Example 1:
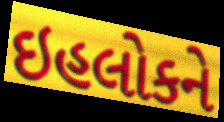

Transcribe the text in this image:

ઇહલોકને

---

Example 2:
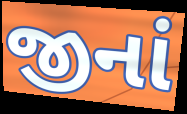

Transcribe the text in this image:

જીનાં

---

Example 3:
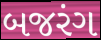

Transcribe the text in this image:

બજરંગ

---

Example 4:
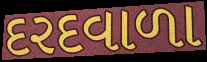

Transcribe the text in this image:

દરદવાળા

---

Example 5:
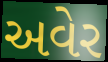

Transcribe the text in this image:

અવેર